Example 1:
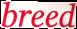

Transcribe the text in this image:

breed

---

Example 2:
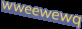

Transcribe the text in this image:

wweewewq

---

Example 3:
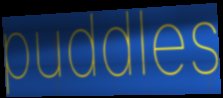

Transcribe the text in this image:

puddles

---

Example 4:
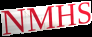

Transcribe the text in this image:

NMHS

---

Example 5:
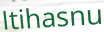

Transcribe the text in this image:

Itihasnu